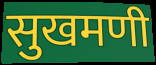
सुखमणी